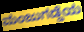
ಮಂಜುಗಡ್ಡೆಯ